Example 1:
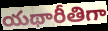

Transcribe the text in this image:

యథారీతిగా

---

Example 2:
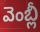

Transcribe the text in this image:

వెంబ్లీ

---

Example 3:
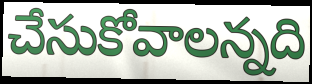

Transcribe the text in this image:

చేసుకోవాలన్నది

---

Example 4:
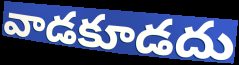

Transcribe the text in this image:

వాడకూడదు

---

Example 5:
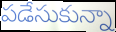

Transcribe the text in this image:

పడేసుకున్నా